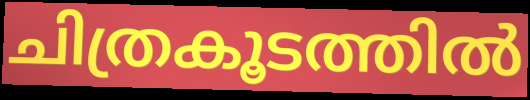
ചിത്രകൂടത്തിൽ